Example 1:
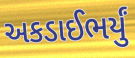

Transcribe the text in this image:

અકડાઈભર્યું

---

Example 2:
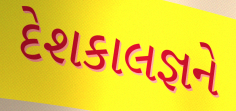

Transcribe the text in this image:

દેશકાલજ્ઞને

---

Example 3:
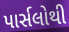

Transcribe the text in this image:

પાર્સલોથી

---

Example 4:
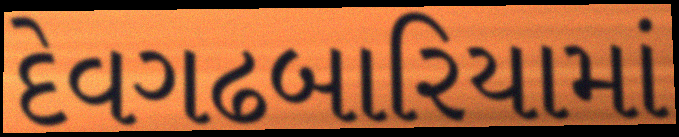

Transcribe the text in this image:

દેવગઢબારિયામાં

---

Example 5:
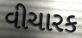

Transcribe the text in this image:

વીચારક